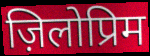
ज़िलोप्रिम